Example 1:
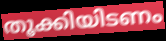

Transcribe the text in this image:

തൂക്കിയിടണം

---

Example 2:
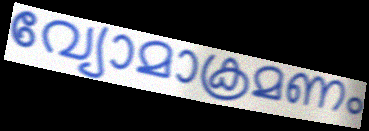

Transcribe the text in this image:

വ്യോമാക്രമണം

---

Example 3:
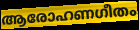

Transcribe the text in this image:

ആരോഹണഗീതം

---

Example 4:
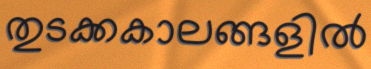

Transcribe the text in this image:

തുടക്കകാലങ്ങളിൽ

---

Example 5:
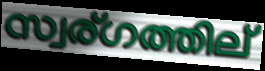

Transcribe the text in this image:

സ്വര്ഗത്തില്